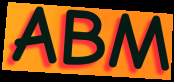
ABM